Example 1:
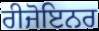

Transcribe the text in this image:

ਰੀਜੋਇਨਰ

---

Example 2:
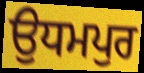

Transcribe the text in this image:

ਉਧਮਪੁਰ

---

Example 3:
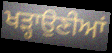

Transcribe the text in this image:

ਖੜ੍ਹਾਉਣੀਆਂ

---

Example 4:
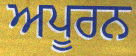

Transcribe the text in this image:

ਅਪੂਰਨ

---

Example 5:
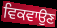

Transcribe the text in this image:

ਵਿਕਵਾਉਣ